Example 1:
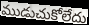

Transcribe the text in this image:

ముడుచుకోలేదు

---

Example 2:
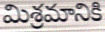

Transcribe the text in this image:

మిశ్రమానికి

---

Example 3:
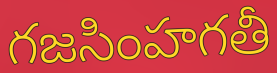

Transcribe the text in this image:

గజసింహగతీ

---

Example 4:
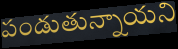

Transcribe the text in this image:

పండుతున్నాయని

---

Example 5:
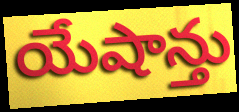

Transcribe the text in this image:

యేషాన్తు